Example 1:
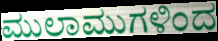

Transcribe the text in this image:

ಮುಲಾಮುಗಳಿಂದ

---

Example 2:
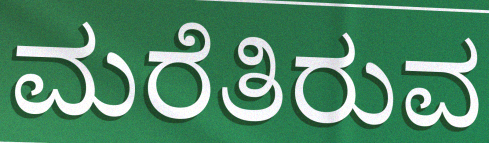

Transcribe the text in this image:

ಮರೆತಿರುವ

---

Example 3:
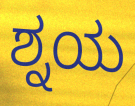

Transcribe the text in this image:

ಶ್ನಯ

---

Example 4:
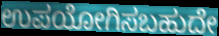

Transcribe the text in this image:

ಉಪಯೋಗಿಸಬಹುದೇ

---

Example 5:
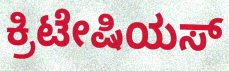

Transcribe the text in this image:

ಕ್ರಿಟೇಷಿಯಸ್